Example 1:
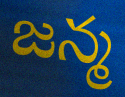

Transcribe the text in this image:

జన్మ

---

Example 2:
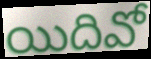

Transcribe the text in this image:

యిదివో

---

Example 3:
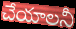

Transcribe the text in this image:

చేయాలనీ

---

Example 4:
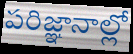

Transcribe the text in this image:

పరిజ్ఞానాల్లో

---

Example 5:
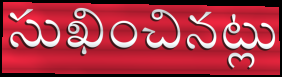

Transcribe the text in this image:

సుఖించినట్లు